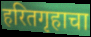
हरितगृहाचा